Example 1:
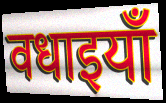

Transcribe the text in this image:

वधाइयाँ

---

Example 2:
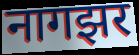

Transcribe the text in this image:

नागझर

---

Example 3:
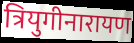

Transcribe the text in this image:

त्रियुगीनारायण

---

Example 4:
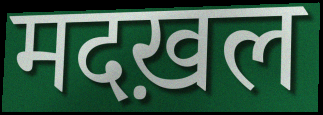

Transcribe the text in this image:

मदख़ल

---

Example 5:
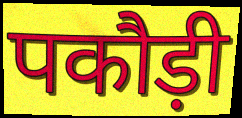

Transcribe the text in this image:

पकौड़ी